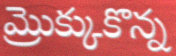
మ్రొక్కుకొన్న